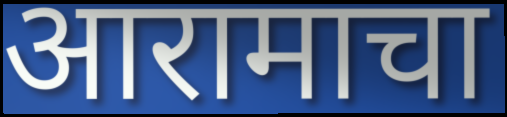
आरामाचा